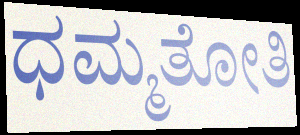
ಧಮ್ಮತೋತಿ